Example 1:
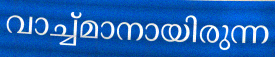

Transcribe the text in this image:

വാച്ച്മാനായിരുന്ന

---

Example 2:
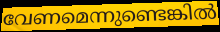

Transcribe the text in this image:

വേണമെന്നുണ്ടെങ്കിൽ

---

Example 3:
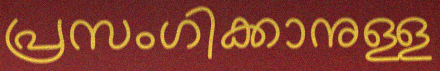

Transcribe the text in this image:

പ്രസംഗിക്കാനുള്ള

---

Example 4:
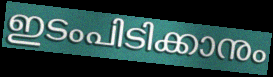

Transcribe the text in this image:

ഇടംപിടിക്കാനും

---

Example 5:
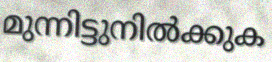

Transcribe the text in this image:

മുന്നിട്ടുനിൽക്കുക